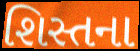
શિસ્તના